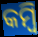
କମ୍ବି